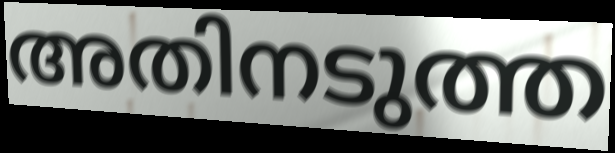
അതിനടുത്ത